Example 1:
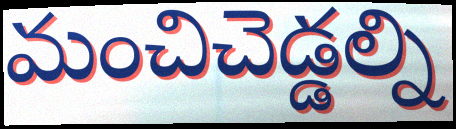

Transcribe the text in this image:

మంచిచెడ్డల్ని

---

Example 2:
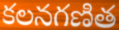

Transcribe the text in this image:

కలనగణిత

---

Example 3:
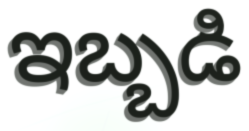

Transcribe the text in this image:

ఇబ్బడి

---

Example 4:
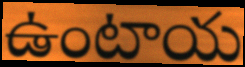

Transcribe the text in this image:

ఉంటాయ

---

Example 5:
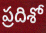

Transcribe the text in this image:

ప్రదిశో